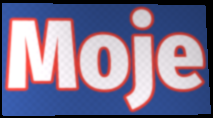
Moje